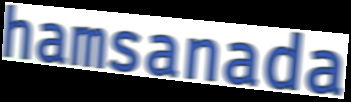
hamsanada